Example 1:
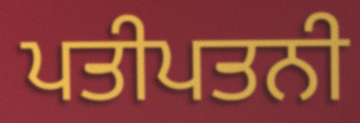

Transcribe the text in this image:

ਪਤੀਪਤਨੀ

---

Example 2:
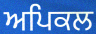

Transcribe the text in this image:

ਅਪਿਕਲ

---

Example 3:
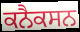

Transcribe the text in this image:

ਕਨੈਕਸਨ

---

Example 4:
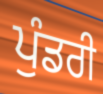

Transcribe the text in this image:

ਪੁੰਡਰੀ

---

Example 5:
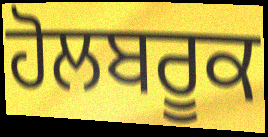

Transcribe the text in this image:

ਹੋਲਬਰੂਕ